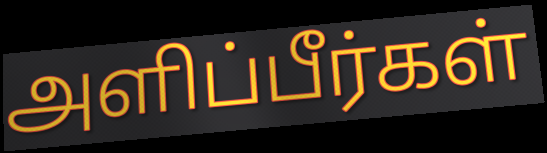
அளிப்பீர்கள்